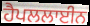
ਹੈਪਲਲਾਈਨ